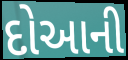
દોઆની